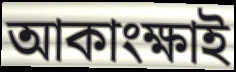
আকাংক্ষাই